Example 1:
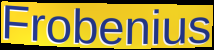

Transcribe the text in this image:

Frobenius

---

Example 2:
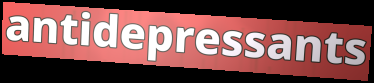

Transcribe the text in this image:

antidepressants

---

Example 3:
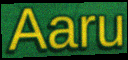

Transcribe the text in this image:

Aaru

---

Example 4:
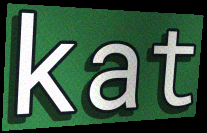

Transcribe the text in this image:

kat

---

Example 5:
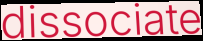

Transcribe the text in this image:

dissociate